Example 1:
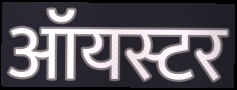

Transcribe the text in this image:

ऑयस्टर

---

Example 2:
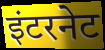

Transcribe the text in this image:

इंटरनेट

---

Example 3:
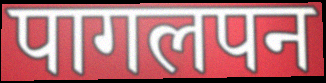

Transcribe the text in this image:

पागलपन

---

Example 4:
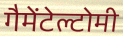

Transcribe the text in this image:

गैमेंटेल्टोमी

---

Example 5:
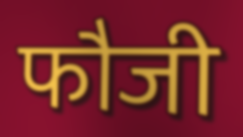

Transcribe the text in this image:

फौजी